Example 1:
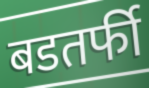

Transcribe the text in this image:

बडतर्फी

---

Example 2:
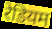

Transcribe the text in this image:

रेडियम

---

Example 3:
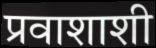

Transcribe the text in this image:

प्रवाशाशी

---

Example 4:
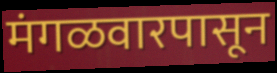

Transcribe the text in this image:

मंगळवारपासून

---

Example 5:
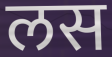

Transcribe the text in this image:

लस